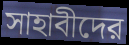
সাহাবীদের